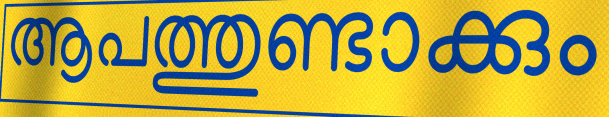
ആപത്തുണ്ടാക്കും